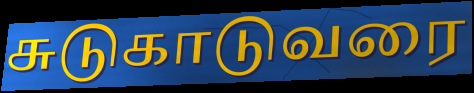
சுடுகாடுவரை